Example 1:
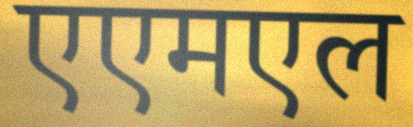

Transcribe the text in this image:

एएमएल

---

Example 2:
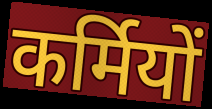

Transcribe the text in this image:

कर्मियों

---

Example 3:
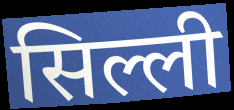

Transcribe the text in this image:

सिल्ली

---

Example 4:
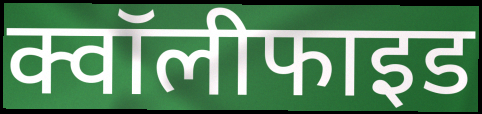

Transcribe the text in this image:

क्वॉलीफाइड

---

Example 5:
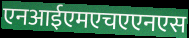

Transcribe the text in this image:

एनआईएमएचएएनएस